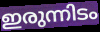
ഇരുന്നിടം